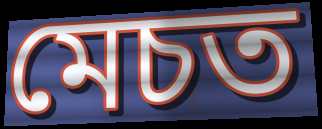
মেচত